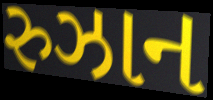
રુઝાન